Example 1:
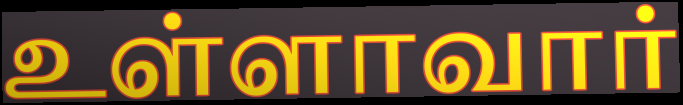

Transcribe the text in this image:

உள்ளாவார்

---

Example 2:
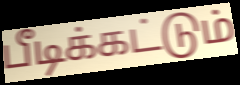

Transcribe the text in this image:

பீடிக்கட்டும்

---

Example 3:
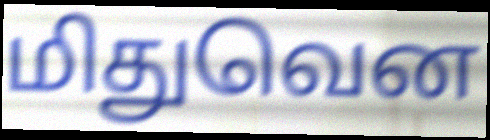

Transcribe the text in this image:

மிதுவென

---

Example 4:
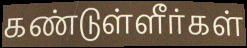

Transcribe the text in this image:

கண்டுள்ளீர்கள்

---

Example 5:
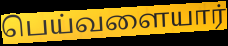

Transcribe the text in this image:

பெய்வளையார்